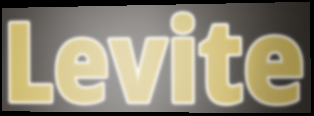
Levite